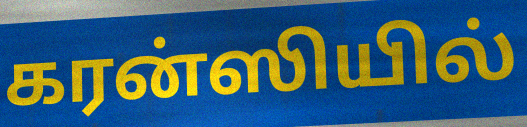
கரன்ஸியில்